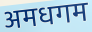
अमधगम